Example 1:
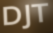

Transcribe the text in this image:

DJT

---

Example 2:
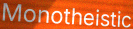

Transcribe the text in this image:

Monotheistic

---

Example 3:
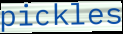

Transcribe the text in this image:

pickles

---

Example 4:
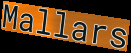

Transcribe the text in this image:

Mallars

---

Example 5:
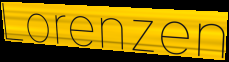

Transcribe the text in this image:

Lorenzen